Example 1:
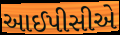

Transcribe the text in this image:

આઈપીસીએ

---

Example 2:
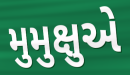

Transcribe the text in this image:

મુમુક્ષુએ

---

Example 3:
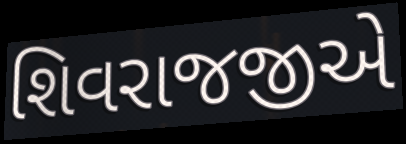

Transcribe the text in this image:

શિવરાજજીએ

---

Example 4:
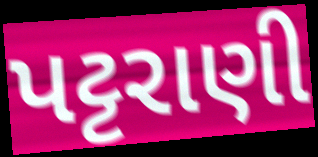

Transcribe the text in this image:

પટ્ટરાણી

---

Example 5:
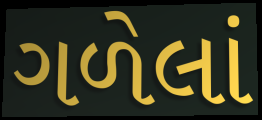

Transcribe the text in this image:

ગળેલાં